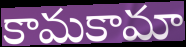
కామకామా